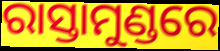
ରାସ୍ତାମୁଣ୍ଡରେ